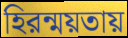
হিরন্ময়তায়